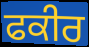
ਫਕੀਰ